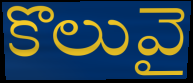
కొలువై